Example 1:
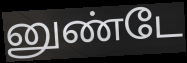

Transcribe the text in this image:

னுண்டே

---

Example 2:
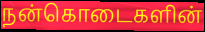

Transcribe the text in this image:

நன்கொடைகளின்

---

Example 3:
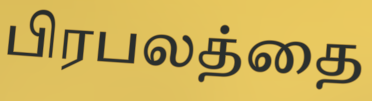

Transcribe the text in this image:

பிரபலத்தை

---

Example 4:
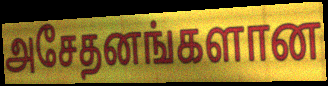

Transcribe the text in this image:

அசேதனங்களான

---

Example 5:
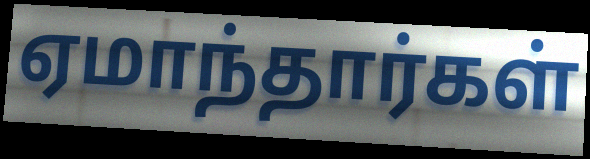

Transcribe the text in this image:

ஏமாந்தார்கள்